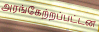
அரங்கேற்றப்பட்டன